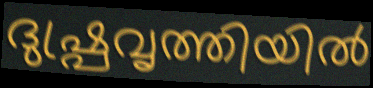
ദുഷ്പ്രവൃത്തിയിൽ